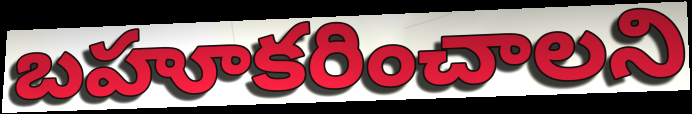
బహూకరించాలని